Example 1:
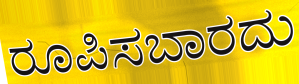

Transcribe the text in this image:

ರೂಪಿಸಬಾರದು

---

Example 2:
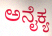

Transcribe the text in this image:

ಅನೈಕ್ಯ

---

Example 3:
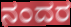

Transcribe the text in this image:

ನಂದರ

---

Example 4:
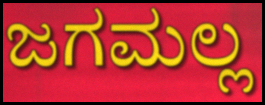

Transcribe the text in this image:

ಜಗಮಲ್ಲ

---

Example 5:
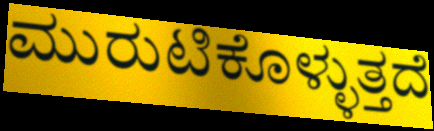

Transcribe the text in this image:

ಮುರುಟಿಕೊಳ್ಳುತ್ತದೆ